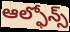
ఆల్ఫోన్స్